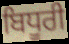
ਬਿਧੂਰੀ